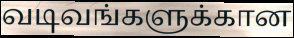
வடிவங்களுக்கான